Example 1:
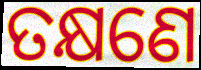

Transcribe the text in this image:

ତକ୍ଷଣେ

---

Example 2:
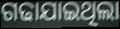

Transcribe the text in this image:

ଗଢାଯାଇଥିଲା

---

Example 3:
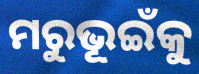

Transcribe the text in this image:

ମରୁଭୂଇଁକୁ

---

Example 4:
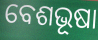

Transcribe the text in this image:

ବେଶଭୂଷା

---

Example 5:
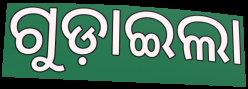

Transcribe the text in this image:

ଗୁଡ଼ାଇଲା